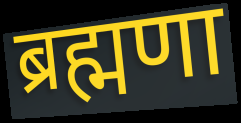
ब्रह्मणा